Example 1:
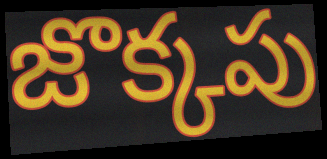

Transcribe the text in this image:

జొక్కపు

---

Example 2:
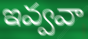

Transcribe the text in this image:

ఇవ్వవా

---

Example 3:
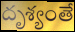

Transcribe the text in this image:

దృశ్యంతే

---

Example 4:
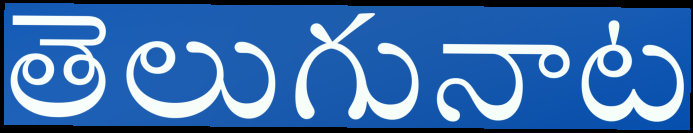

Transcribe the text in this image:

తెలుగునాట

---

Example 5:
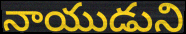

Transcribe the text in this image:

నాయుడుని